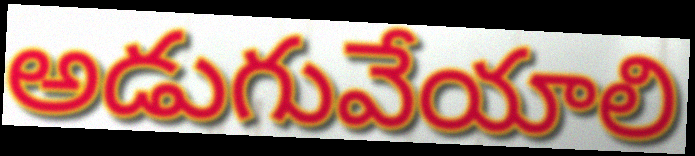
అడుగువేయాలి